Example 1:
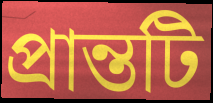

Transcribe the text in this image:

প্রান্তটি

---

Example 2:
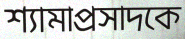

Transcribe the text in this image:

শ্যামাপ্রসাদকে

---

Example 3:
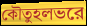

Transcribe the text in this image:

কৌতুহলভরে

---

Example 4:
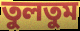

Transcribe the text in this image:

তুলতুম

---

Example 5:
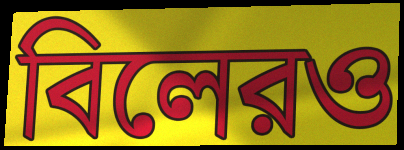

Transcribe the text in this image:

বিলেরও